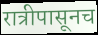
रात्रीपासूनच